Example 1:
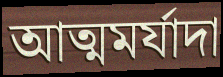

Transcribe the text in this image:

আত্মমর্যাদা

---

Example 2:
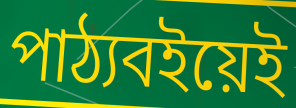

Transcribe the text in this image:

পাঠ্যবইয়েই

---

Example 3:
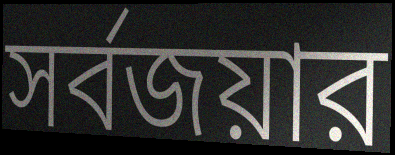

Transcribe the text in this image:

সর্বজয়ার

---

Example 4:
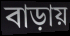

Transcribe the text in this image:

বাড়ায়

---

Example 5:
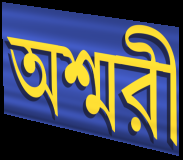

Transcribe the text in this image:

অশ্মরী